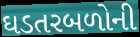
ઘડતરબળોની